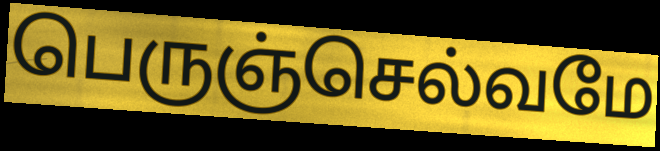
பெருஞ்செல்வமே